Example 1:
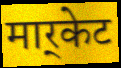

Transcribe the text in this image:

मार्केट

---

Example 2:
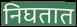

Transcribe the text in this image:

निघतात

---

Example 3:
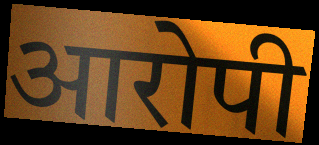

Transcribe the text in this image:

आरोपी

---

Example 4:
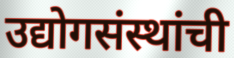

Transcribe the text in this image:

उद्योगसंस्थांची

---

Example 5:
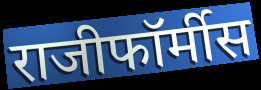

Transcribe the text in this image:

राजीफॉर्मीस